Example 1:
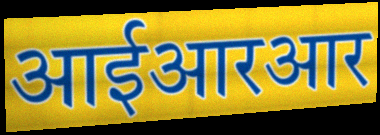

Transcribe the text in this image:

आईआरआर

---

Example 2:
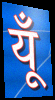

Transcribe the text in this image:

यूँ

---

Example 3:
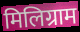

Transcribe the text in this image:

मिलिग्राम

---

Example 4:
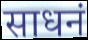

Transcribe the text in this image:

साधनं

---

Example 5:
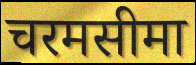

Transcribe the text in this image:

चरमसीमा